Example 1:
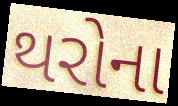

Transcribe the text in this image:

થરોના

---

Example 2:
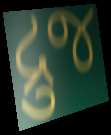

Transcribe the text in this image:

દ્રુજ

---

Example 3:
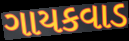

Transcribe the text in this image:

ગાયકવાડ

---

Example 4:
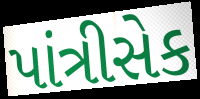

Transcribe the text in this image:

પાંત્રીસેક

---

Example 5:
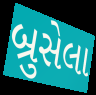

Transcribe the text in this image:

બ્રુસેલા